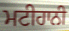
ਮਟੀਹਾਨੀ